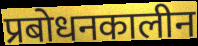
प्रबोधनकालीन